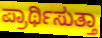
ಪ್ರಾರ್ಥಿಸುತ್ತಾ